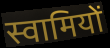
स्वामियों